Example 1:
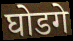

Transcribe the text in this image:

घोडगे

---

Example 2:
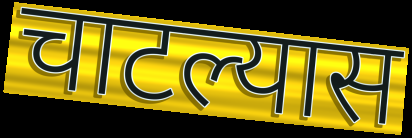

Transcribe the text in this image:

चाटल्यास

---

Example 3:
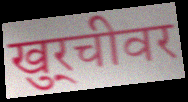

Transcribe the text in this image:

खुर्चीवर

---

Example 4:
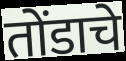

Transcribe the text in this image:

तोंडाचे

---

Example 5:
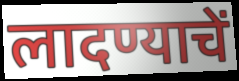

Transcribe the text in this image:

लादण्याचें